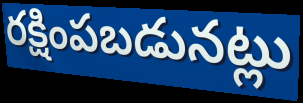
రక్షింపబడునట్లు